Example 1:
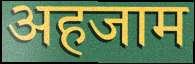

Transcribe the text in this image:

अहजाम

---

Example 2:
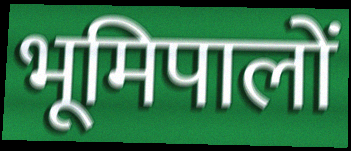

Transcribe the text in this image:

भूमिपालों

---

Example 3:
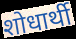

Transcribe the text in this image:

शोधार्थी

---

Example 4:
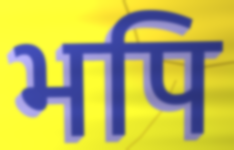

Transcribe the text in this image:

भपि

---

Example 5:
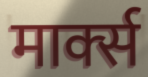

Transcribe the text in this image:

मार्क्‍स